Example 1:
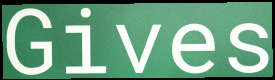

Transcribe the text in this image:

Gives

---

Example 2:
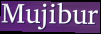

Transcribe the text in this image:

Mujibur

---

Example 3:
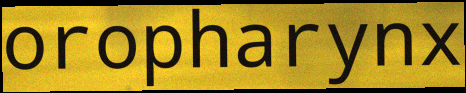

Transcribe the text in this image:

oropharynx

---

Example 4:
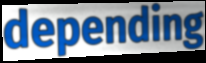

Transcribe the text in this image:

depending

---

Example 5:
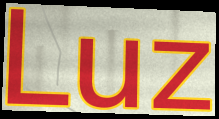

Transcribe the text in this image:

Luz